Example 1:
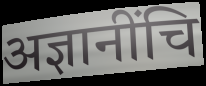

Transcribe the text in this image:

अज्ञानींचि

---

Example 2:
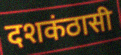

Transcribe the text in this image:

दशकंठासी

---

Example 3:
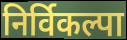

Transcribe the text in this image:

निर्विकल्पा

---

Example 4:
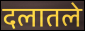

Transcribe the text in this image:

दलातले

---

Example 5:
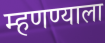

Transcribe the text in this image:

म्हणण्याला